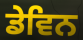
ਡੇਵਿਨ